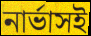
নার্ভাসই